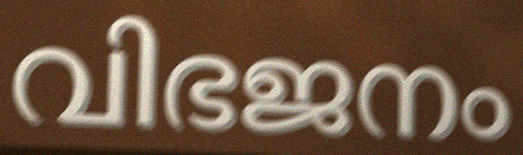
വിഭജനം